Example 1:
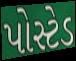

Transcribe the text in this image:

પોસ્ટેડ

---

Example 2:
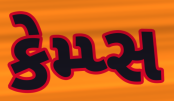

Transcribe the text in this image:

કેમ્પ્સ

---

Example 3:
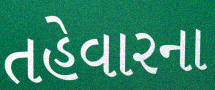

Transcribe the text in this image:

તહેવારના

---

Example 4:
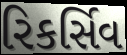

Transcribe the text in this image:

રિકર્સિવ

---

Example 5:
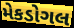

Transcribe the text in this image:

મેકડોગલ